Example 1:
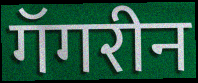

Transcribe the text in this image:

गॅगरीन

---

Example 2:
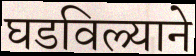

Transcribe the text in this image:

घडविल्याने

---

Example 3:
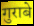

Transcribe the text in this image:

गुराबे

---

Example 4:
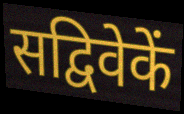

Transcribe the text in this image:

सद्विवेकें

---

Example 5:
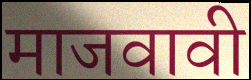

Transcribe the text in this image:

माजवावी